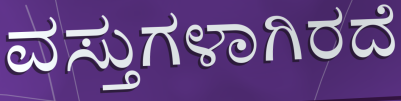
ವಸ್ತುಗಳಾಗಿರದೆ